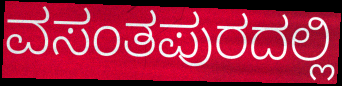
ವಸಂತಪುರದಲ್ಲಿ